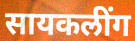
सायकलींग